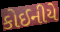
કોઈનીયે